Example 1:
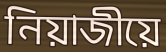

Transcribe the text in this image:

নিয়াজীয়ে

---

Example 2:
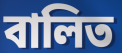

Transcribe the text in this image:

বালিত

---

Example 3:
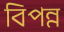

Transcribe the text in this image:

বিপন্ন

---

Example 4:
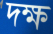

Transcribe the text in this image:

দক্ষ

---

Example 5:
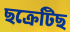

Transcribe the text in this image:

ছক্ৰেটিছ